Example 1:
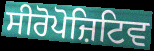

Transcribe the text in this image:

ਸੀਰੋਪੋਜ਼ਿਟਿਵ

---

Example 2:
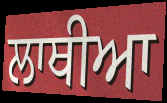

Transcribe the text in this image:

ਲਾਥੀਆ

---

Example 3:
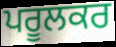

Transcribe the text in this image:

ਪਰੂਲਕਰ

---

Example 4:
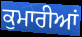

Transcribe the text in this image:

ਕੁਮਾਰੀਆਂ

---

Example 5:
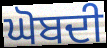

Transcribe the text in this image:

ਘੋਬਦੀ